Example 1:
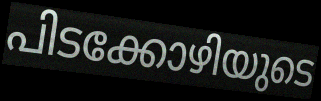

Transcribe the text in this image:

പിടക്കോഴിയുടെ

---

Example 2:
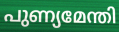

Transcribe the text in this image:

പുണ്യമേന്തി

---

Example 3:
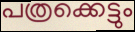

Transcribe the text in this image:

പത്രക്കെട്ടും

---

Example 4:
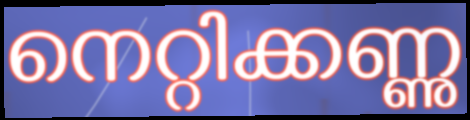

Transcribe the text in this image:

നെറ്റിക്കണ്ണു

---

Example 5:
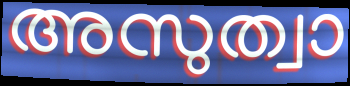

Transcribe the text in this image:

അസുത്വാ